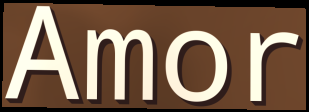
Amor